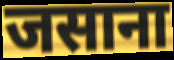
जसाना